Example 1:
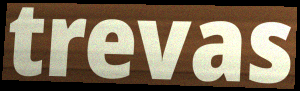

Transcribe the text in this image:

trevas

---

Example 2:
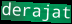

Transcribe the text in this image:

derajat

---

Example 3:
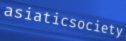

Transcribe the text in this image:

asiaticsociety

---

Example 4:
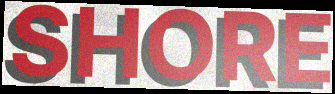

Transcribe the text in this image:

SHORE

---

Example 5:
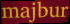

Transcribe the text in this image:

majbur